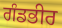
ਗੰਡਭੀਰ